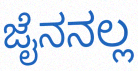
ಜೈನನಲ್ಲ